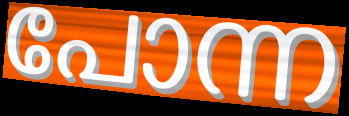
പോന്ന